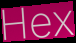
Hex